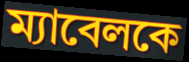
ম্যাবেলকে